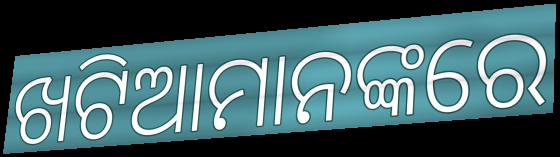
ଖଟିଆମାନଙ୍କରେ